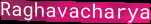
Raghavacharya